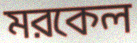
মরকেল